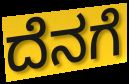
ದೆನಗೆ